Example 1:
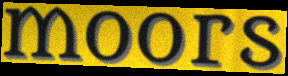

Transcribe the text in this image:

moors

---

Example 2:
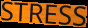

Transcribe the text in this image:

STRESS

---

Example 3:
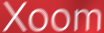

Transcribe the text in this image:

Xoom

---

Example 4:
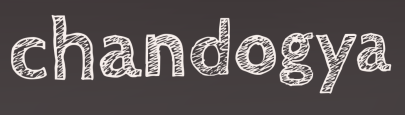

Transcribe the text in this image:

chandogya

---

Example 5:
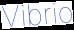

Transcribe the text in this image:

Vibrio